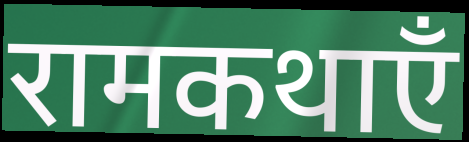
रामकथाएँ